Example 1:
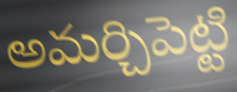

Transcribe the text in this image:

అమర్చిపెట్టి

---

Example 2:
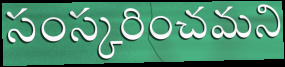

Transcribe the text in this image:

సంస్కరించమని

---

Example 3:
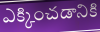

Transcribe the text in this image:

ఎక్కించడానికి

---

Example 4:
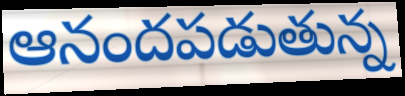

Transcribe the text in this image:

ఆనందపడుతున్న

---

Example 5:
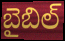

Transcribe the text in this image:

బైబిల్